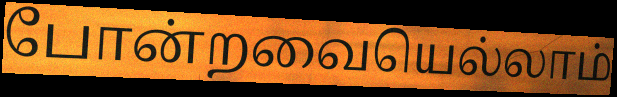
போன்றவையெல்லாம்